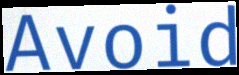
Avoid